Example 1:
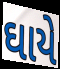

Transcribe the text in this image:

ઘાયે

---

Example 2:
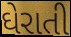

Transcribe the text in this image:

ઘેરાતી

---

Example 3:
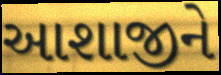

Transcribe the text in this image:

આશાજીને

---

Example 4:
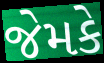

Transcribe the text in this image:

જેમકે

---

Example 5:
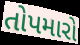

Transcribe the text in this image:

તોપમારો